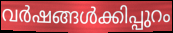
വർഷങ്ങൾക്കിപ്പുറം